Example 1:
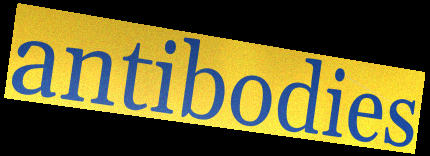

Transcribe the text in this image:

antibodies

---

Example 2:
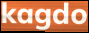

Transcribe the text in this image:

kagdo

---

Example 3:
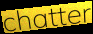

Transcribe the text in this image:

chatter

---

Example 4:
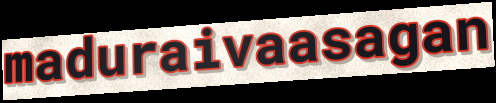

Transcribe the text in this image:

maduraivaasagan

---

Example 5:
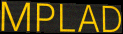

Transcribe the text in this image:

MPLAD